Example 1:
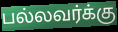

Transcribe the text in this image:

பல்லவர்க்கு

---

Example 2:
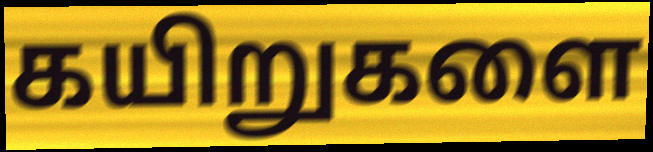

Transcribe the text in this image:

கயிறுகளை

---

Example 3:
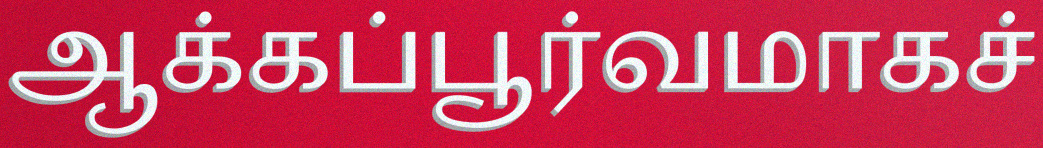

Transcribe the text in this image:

ஆக்கப்பூர்வமாகச்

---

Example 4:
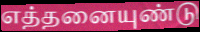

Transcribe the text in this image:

எத்தனையுண்டு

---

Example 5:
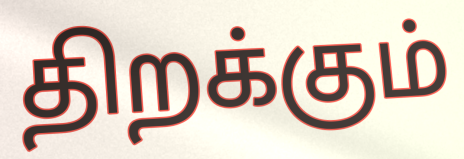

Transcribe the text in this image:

திறக்கும்